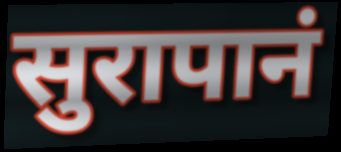
सुरापानं